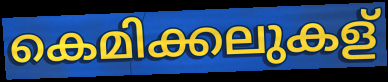
കെമിക്കലുകള്